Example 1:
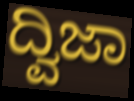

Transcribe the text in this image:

ದ್ವಿಜಾ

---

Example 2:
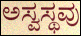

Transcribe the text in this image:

ಅಸ್ವಸ್ಥವು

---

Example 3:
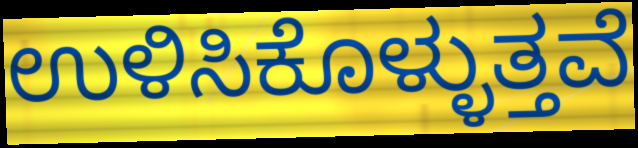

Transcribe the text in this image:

ಉಳಿಸಿಕೊಳ್ಳುತ್ತವೆ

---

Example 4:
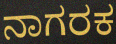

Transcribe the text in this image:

ನಾಗರಕ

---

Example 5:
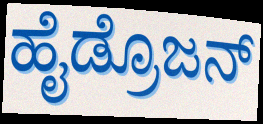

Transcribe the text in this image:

ಹೈಡ್ರೊಜನ್